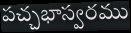
పచ్చభాస్వరము